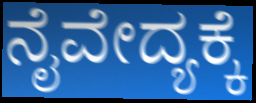
ನೈವೇದ್ಯಕ್ಕೆ